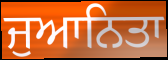
ਜੁਆਨਿਤਾ